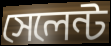
সেলেন্ট